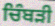
ਚਿੰਬੜੀ